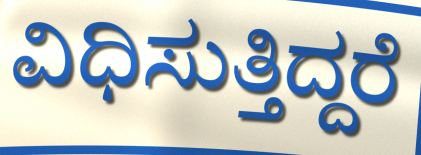
ವಿಧಿಸುತ್ತಿದ್ದರೆ